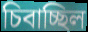
চিবাচ্ছিল